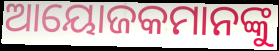
ଆୟୋଜକମାନଙ୍କୁ